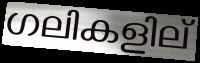
ഗലികളില്